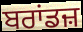
ਬਰਾਂਡਜ਼